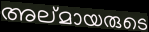
അല്മായരുടെ